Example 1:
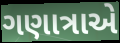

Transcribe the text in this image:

ગણાત્રાએ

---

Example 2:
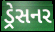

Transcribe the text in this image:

ડ્રેસનર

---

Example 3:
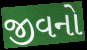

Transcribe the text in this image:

જીવનો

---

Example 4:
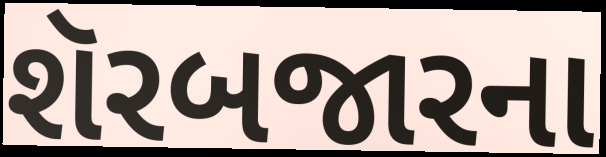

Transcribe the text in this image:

શૅરબજારના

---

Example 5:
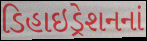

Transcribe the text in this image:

ડિહાઇડ્રેશનનાં